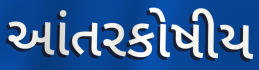
આંતરકોષીય